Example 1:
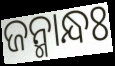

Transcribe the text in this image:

ଜନ୍ମାନ୍ଧଃ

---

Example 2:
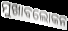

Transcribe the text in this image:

ମୁଖାବଲୋକନ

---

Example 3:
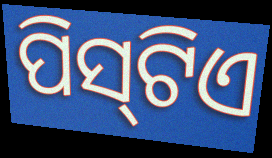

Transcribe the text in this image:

ପିସ୍‌ଟିଏ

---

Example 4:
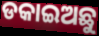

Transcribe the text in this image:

ଡକାଇଅଛୁ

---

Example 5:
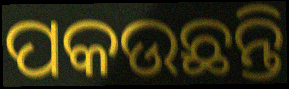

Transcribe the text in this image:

ପକଉଛନ୍ତି